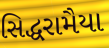
સિદ્ધરામૈયા